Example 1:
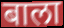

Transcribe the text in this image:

बाला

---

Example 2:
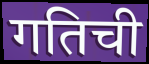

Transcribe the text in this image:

गतिची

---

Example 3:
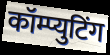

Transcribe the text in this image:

कॉम्प्युटिंग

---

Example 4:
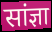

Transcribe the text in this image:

सांज्ञा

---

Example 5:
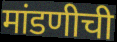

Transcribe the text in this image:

मांडणीची